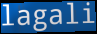
lagali